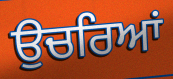
ਉਚਰਿਆਂ